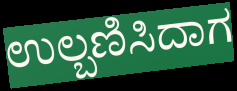
ಉಲ್ಬಣಿಸಿದಾಗ